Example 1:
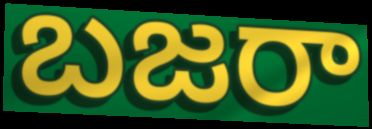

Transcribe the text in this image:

బజరా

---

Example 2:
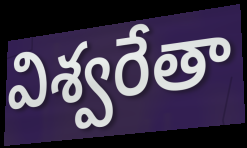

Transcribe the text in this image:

విశ్వరేతా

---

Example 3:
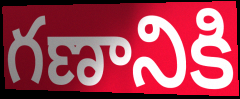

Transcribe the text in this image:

గణానికి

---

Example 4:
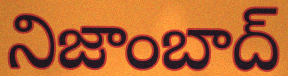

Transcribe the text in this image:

నిజాంబాద్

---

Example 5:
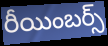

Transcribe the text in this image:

రీయింబర్స్